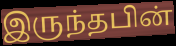
இருந்தபின்